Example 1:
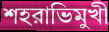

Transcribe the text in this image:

শহরাভিমুখী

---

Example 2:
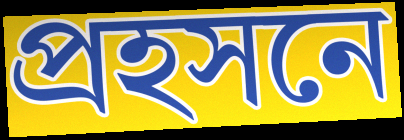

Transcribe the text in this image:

প্রহসনে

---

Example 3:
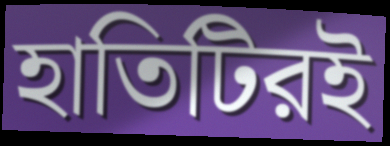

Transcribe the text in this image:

হাতিটিরই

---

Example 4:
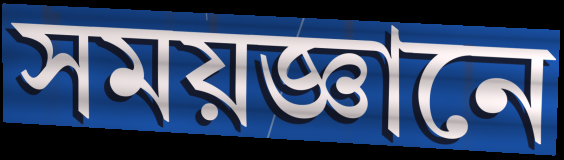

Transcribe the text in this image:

সময়জ্ঞানে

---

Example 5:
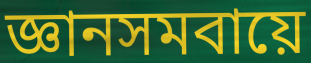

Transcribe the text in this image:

জ্ঞানসমবায়ে